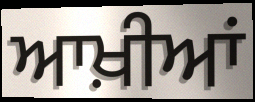
ਆਖ਼ੀਆਂ